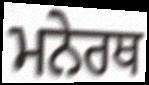
ਮਨੇਰਥ